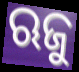
ଋଜୁ